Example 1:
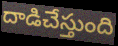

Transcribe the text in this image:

దాడిచేస్తుంది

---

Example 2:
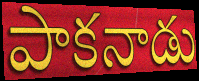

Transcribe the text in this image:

పాకనాడు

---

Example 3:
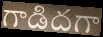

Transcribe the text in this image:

గాడిదగా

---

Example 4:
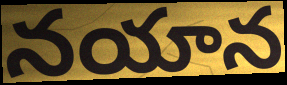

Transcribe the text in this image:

నయాన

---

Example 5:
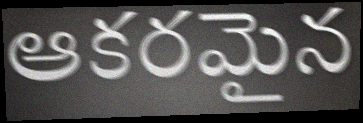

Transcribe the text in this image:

ఆకరమైన